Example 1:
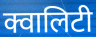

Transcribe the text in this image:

क्वालिटी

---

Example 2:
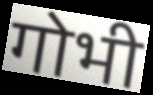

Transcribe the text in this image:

गोभी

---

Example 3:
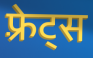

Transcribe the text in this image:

फ़्रेट्स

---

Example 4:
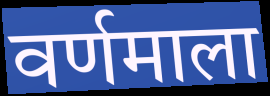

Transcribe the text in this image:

वर्णमाला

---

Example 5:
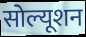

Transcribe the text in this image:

सोल्‍यूशन